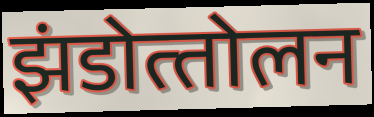
झंडोत्‍तोलन